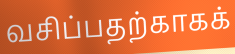
வசிப்பதற்காகக்